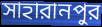
সাহারানপুর